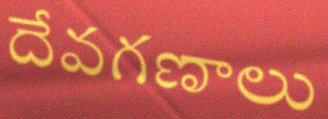
దేవగణాలు